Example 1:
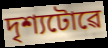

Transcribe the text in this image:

দৃশ্যটোৱে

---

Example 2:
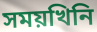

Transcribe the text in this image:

সময়খিনি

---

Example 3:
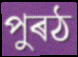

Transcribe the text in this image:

পুৰঠ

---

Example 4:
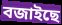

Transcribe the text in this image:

বজাইছে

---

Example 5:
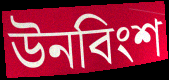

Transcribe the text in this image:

উনবিংশ